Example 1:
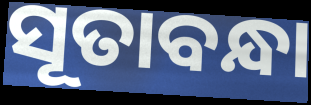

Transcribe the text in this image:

ସୂତାବନ୍ଧା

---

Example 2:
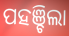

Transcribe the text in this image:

ପହଞ୍ଚିଲା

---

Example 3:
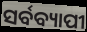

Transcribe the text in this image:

ସର୍ବବ୍ୟାପୀ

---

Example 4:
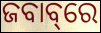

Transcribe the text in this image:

ଜବାବ୍‌ରେ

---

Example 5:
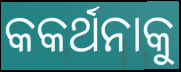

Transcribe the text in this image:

କକର୍ଥନାକୁ